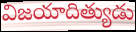
విజయాదిత్యుడు